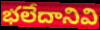
భలేదానివి